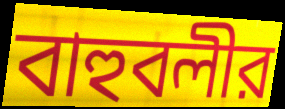
বাহুবলীর